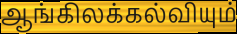
ஆங்கிலக்கல்வியும்